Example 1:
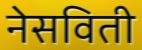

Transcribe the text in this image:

नेसविती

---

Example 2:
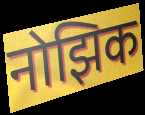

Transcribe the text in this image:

नोझिक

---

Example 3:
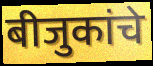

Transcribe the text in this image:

बीजुकांचे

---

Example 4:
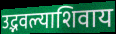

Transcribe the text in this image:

उद्भवल्याशिवाय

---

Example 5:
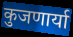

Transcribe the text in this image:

कुजणार्या